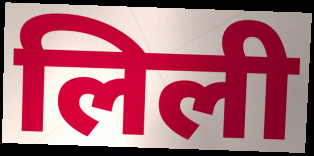
लिली